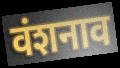
वंशनाव